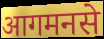
आगमनसे